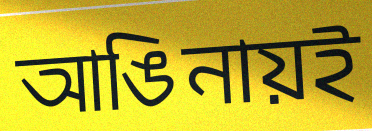
আঙিনায়ই